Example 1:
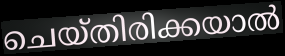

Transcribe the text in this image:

ചെയ്തിരിക്കയാൽ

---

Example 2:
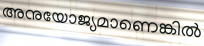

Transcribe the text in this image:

അനുയോജ്യമാണെങ്കിൽ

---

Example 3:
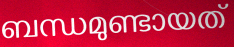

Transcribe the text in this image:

ബന്ധമുണ്ടായത്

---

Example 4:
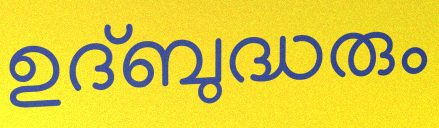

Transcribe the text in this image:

ഉദ്ബുദ്ധരും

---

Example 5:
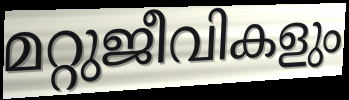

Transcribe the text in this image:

മറ്റുജീവികളും